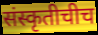
संस्कृतीचीच